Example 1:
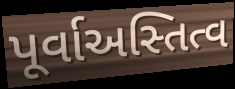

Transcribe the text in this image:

પૂર્વાઅસ્તિત્વ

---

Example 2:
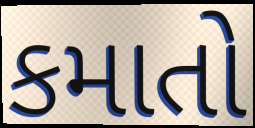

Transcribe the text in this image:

કમાતો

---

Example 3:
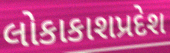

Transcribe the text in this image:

લોકાકાશપ્રદેશ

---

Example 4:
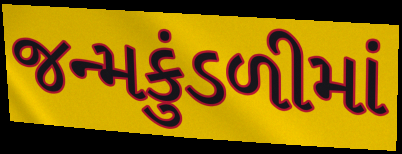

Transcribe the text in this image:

જન્મકુંડળીમાં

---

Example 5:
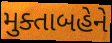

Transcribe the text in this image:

મુક્તાબહેને